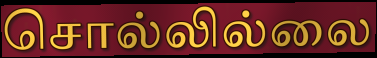
சொல்லில்லை